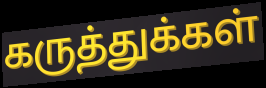
கருத்துக்கள்